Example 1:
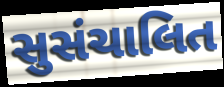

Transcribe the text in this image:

સુસંચાલિત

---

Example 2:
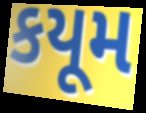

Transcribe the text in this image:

કયૂમ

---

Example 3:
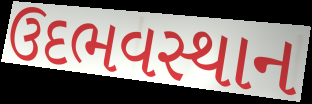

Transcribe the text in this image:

ઉદભવસ્થાન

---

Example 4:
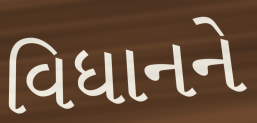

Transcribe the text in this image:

વિધાનને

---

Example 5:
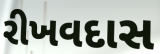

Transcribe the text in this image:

રીખવદાસ